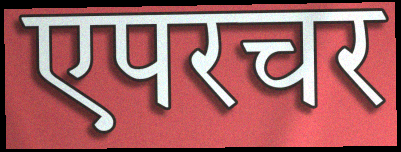
एपरचर